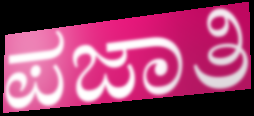
ಪಜಾತಿ